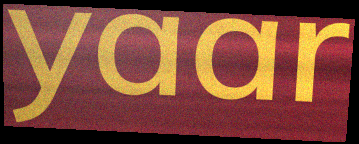
yaar